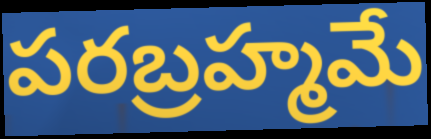
పరబ్రహ్మమే